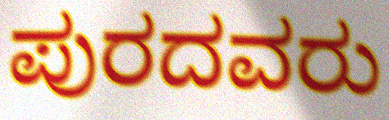
ಪುರದವರು